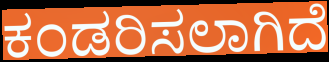
ಕಂಡರಿಸಲಾಗಿದೆ